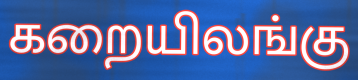
கறையிலங்கு